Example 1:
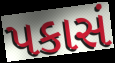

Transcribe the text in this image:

પકાસં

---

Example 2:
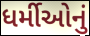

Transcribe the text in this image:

ધર્મીઓનું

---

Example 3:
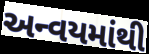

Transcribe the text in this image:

અન્વયમાંથી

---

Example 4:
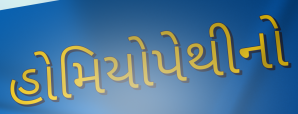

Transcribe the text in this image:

હોમિયોપેથીનો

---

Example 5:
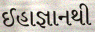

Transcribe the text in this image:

ઈહાજ્ઞાનથી